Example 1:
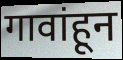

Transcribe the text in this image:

गावांहून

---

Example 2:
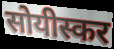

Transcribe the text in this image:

सोयीस्कर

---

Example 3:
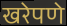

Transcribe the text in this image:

खरेपणे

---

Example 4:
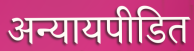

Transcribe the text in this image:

अन्यायपीडित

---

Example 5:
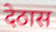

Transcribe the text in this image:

देठास